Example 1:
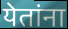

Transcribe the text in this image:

येतांना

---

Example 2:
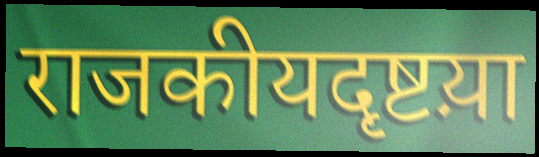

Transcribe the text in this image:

राजकीयदृष्टय़ा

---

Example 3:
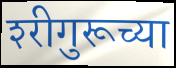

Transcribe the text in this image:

श्रीगुरूच्या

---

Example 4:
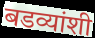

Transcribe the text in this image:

बडव्यांशी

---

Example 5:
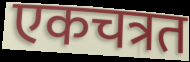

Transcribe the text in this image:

एकचत्रत